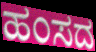
ಹಂಸದ